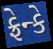
ફ્રેન્કે